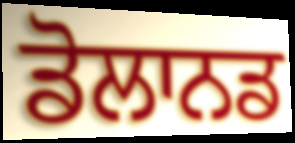
ਡੋਲਾਨਡ